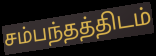
சம்பந்தத்திடம்